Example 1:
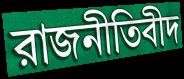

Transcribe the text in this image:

রাজনীতিবীদ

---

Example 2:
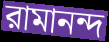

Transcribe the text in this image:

রামানন্দ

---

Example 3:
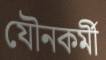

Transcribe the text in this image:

যৌনকর্মী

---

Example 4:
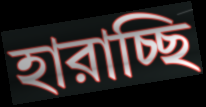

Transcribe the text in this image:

হারাচ্ছি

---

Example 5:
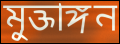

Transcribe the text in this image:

মুক্তাঙ্গন